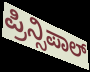
ಪ್ರಿನ್ಸಿಪಾಲ್